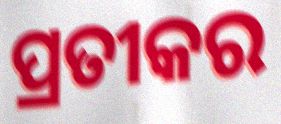
ପ୍ରତୀକର